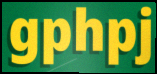
gphpj